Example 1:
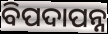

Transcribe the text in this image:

ବିପଦାପନ୍ନ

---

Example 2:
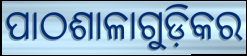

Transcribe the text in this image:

ପାଠଶାଳାଗୁଡ଼ିକର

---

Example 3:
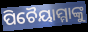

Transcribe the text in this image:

ପିଚୈୟାମ୍ମାଙ୍କୁ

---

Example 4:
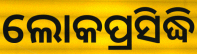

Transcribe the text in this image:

ଲୋକପ୍ରସିଦ୍ଧି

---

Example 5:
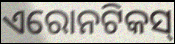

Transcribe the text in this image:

ଏରୋନଟିକସ୍